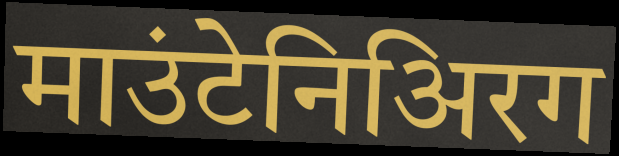
माउंटेनिअिरग